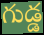
గుడ్డ